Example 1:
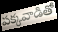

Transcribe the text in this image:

పక్కవాడితో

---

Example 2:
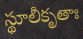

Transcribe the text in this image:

స్థూలీకృతాః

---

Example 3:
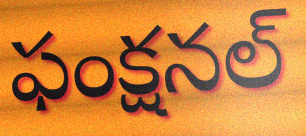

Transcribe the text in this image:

ఫంక్షనల్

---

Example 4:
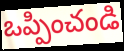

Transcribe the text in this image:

ఒప్పించండి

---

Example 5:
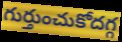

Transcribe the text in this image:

గుర్తుంచుకోదగ్గ